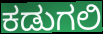
ಕಡುಗಲಿ